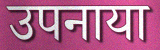
उपनाया